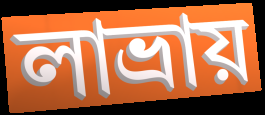
লাভ্ৰায়